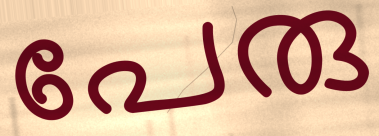
പേരു